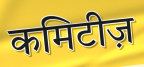
कमिटीज़